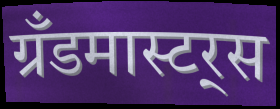
ग्रँडमास्टर्स